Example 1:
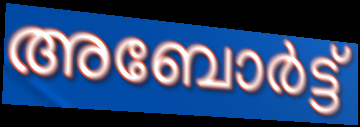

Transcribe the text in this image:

അബോർട്ട്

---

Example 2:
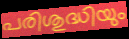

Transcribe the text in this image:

പരിശുദ്ധിയും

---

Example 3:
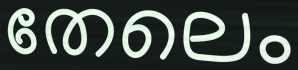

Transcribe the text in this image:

തേലെം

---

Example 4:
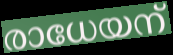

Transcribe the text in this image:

രാധേയന്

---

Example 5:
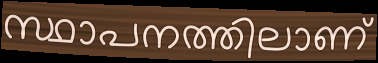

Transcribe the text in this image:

സ്ഥാപനത്തിലാണ്